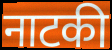
नाटकी